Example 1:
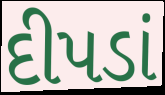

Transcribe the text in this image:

દીપડાં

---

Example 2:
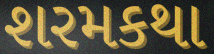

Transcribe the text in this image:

શરમકથા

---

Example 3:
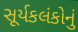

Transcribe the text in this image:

સૂર્યકલંકોનું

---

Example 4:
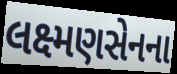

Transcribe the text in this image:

લક્ષ્મણસેનના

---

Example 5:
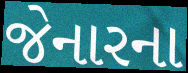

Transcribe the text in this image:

જેનારના